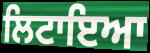
ਲਿਟਾਇਆ